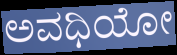
ಅವಧಿಯೋ